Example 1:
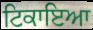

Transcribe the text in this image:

ਟਿਕਾਇਆ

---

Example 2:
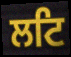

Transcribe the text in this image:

ਲਟਿ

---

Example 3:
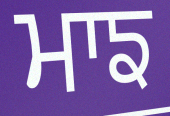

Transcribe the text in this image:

ਮਾਙ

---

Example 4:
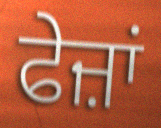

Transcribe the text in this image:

ਫੇਜ਼ਾਂ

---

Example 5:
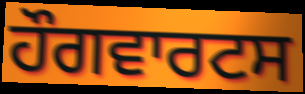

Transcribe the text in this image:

ਹੌਗਵਾਰਟਸ